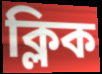
ক্লিক